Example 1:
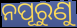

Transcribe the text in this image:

ନପୂରୁଣୁ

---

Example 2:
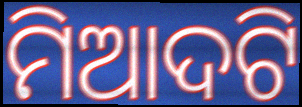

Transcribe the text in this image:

ମିଆଦଟି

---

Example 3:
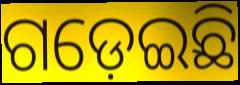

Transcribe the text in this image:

ଗଡ଼େଇଛି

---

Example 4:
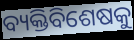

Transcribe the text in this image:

ବ୍ୟକ୍ତିବିଶେଷକୁ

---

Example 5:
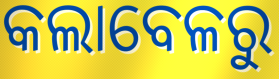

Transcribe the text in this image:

କଲାବେଳରୁ